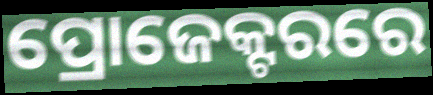
ପ୍ରୋଜେକ୍ଟରରେ